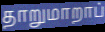
தாறுமாறாப்